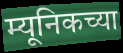
म्यूनिकच्या